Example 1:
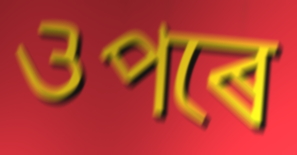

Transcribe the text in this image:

ওপৰে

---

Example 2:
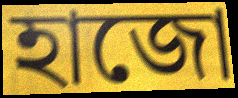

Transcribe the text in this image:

হাজো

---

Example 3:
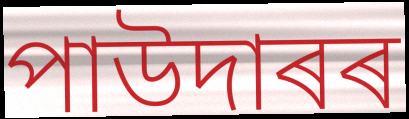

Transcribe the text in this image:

পাউদাৰৰ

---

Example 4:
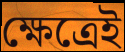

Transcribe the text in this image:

ক্ষেত্ৰেই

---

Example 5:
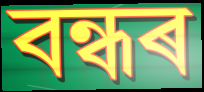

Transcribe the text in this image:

বন্ধৰ